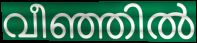
വീഞ്ഞിൽ